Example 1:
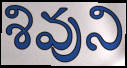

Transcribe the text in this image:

శివుని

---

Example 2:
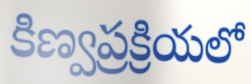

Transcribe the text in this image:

కిణ్వప్రక్రియలో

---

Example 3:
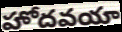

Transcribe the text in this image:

హోదవయా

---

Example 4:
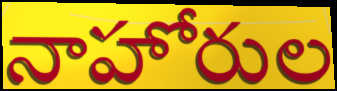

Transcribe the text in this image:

నాహోరుల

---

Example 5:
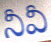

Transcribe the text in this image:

నీవీ